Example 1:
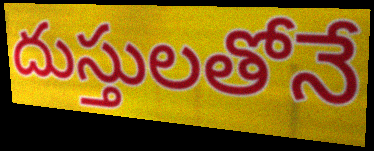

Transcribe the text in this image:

దుస్తులతోనే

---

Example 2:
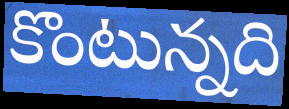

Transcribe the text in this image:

కొంటున్నది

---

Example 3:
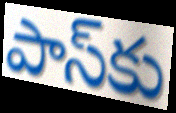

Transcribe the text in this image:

పాస్‌కు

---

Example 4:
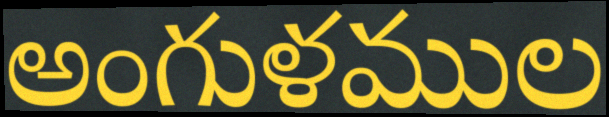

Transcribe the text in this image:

అంగుళముల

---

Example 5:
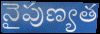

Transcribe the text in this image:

నైపుణ్యత